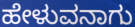
ಹೇಳುವನಾಗು